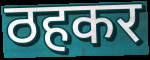
ठहकर